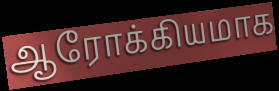
ஆரோக்கியமாக